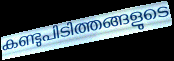
കണ്ടുപിടിത്തങ്ങളുടെ